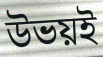
উভয়ই